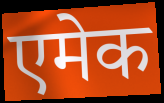
एमेक